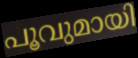
പൂവുമായി